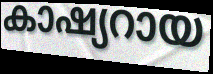
കാഷ്യറായ